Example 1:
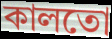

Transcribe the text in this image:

কালতো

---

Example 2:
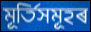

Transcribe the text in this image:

মূৰ্তিসমূহৰ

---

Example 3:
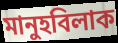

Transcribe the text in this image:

মানুহবিলাক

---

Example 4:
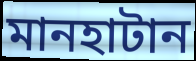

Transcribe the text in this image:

মানহাটান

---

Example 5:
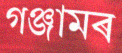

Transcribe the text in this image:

গঞ্জামৰ